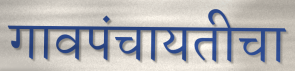
गावपंचायतीचा